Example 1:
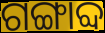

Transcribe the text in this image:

ଗଙ୍ଗାବ୍ଦ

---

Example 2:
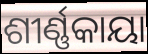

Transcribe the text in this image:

ଶୀର୍ଣ୍ଣକାୟା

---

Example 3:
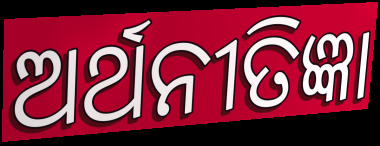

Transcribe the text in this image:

ଅର୍ଥନୀତିଜ୍ଞା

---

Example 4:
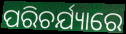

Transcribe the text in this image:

ପରିଚର୍ଯ୍ୟାରେ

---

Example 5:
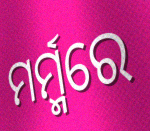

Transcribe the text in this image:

ମର୍ମ୍ମରେ